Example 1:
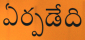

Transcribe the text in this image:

ఏర్పడేది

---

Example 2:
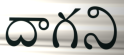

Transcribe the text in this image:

దాగని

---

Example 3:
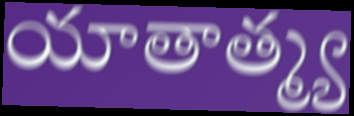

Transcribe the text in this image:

యాతాత్మ్య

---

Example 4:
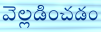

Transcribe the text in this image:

వెల్లడించడం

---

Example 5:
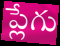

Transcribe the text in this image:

ప్లేగు